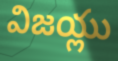
విజయ్లు